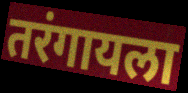
तरंगायला